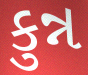
કુન્ન